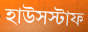
হাউসস্টাফ